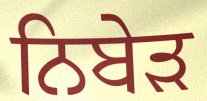
ਨਿਬੇੜ